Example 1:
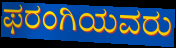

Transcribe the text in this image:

ಫರಂಗಿಯವರು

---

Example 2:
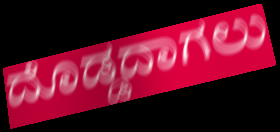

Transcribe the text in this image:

ದೊಡ್ಡದಾಗಲು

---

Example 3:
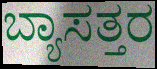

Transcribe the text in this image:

ಬ್ಯಾಸತ್ತರ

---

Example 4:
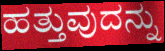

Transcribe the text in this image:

ಹತ್ತುವುದನ್ನು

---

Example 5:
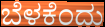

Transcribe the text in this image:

ಬೆಳಕೆಂದು